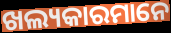
ଖଲ୍ୟକାରମାନେ